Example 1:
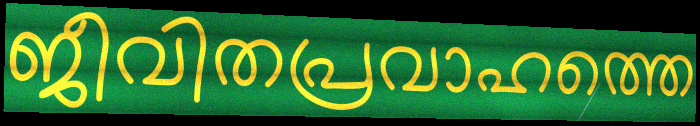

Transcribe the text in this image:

ജീവിതപ്രവാഹത്തെ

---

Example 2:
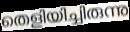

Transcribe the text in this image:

തെളിയിച്ചിരുന്നു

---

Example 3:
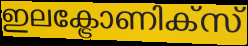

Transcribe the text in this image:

ഇലക്ട്രോണിക്‌സ്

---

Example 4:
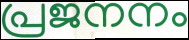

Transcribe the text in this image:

പ്രജനനം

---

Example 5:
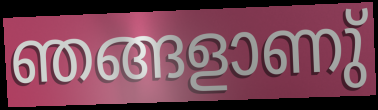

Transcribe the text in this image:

ഞങ്ങളാണു്